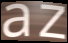
az